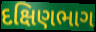
દક્ષિણભાગ